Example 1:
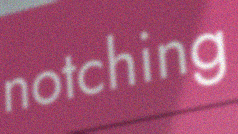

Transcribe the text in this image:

notching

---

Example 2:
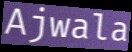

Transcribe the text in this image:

Ajwala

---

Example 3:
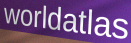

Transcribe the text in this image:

worldatlas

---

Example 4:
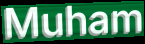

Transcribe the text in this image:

Muham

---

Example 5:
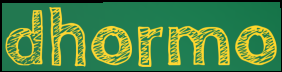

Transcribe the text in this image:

dhormo